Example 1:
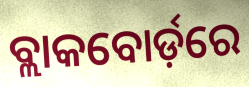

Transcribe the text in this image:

ବ୍ଲାକବୋର୍ଡ଼ରେ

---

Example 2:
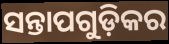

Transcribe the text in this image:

ସନ୍ତାପଗୁଡ଼ିକର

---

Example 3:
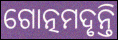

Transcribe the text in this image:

ଗୋତ୍ନମଦୃନ୍ତି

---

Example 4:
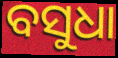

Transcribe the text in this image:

ବସୁଧା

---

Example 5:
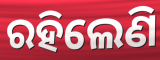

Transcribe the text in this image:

ରହିଲେଣି